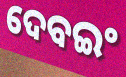
ଦେବଇଂ